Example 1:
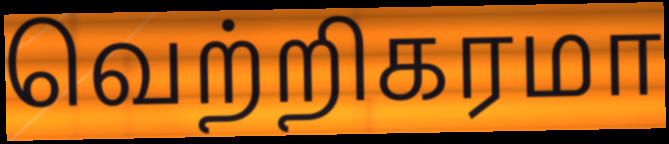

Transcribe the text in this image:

வெற்றிகரமா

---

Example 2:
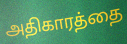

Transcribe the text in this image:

அதிகாரத்தை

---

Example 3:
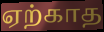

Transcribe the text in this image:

ஏற்காத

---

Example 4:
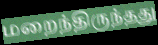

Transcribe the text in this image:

மறைந்திருந்தது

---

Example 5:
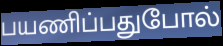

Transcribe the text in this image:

பயணிப்பதுபோல்